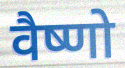
वैष्णो